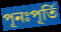
পূনঃপূৰ্তি